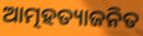
ଆତ୍ମହତ୍ୟାଜନିତ